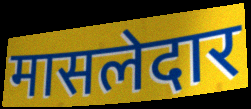
मासलेदार